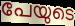
പേയുടെ